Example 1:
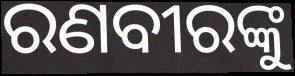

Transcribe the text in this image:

ରଣବୀରଙ୍କୁ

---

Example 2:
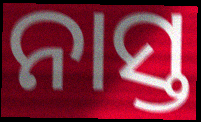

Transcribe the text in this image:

ନାସ୍ତ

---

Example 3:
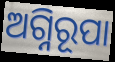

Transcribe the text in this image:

ଅଗ୍ନିରୂପା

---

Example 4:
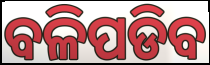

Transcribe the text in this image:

ବଳିପଡିବ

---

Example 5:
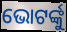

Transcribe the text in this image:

ଭୋଟର୍ଙ୍କୁ